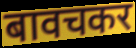
बावचकर